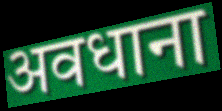
अवधाना